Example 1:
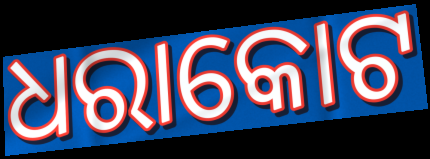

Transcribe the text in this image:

ଧରାକୋଟ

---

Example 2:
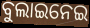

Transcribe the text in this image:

ବୁଲାଇନେଇ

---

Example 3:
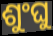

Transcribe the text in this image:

ଶୁଂଘୁ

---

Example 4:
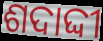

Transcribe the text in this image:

ଶଦାଦ୍ଦୀ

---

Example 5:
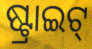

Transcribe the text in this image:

ଷ୍ଟ୍ରାଇଟ୍